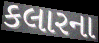
કલારના